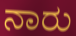
ನಾರು